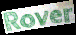
Rover